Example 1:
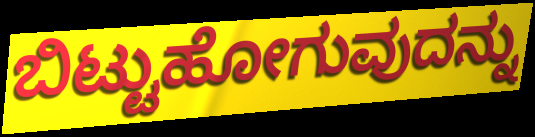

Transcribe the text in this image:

ಬಿಟ್ಟುಹೋಗುವುದನ್ನು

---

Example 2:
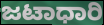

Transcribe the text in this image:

ಜಟಾಧಾರಿ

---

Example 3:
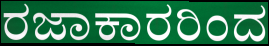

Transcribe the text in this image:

ರಜಾಕಾರರಿಂದ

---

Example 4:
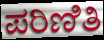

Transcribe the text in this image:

ಪರಿಣಿತಿ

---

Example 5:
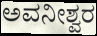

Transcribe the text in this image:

ಅವನೀಶ್ವರ